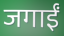
जगाईं